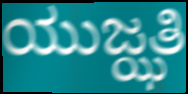
ಯುಜ್ಝತಿ